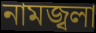
নামজ্বলা